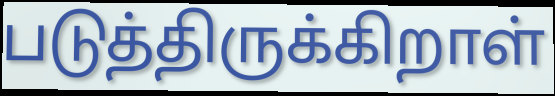
படுத்திருக்கிறாள்